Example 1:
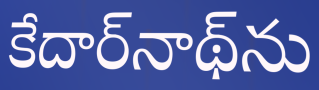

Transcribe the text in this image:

కేదార్‌నాథ్‌ను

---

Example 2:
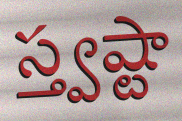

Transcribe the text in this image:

స్త్వష్టా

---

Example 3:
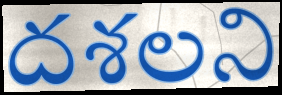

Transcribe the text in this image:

దశలని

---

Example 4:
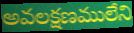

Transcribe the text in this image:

అవలక్షణములేని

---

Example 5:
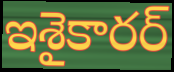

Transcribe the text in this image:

ఇశైకారర్